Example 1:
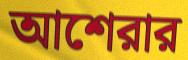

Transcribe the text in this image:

আশেরার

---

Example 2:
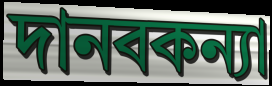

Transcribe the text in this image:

দানবকন্যা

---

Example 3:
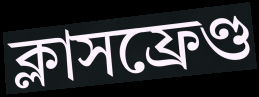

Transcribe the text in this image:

ক্লাসফ্রেণ্ড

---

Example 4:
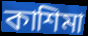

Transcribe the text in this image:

কাশিমা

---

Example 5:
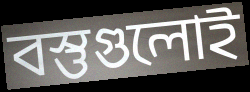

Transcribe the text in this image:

বস্তুগুলোই